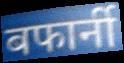
बफार्नी